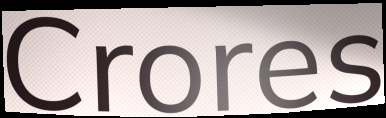
Crores